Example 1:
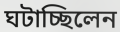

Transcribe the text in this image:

ঘটাচ্ছিলেন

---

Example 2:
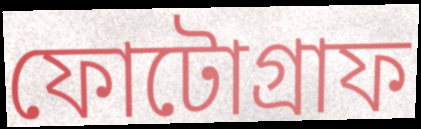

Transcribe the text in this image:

ফোটোগ্রাফ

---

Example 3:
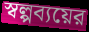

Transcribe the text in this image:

স্বল্পব্যয়ের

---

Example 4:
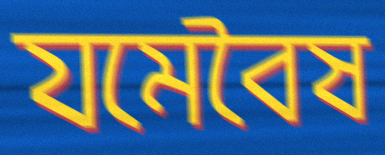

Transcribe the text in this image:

যমেবৈষ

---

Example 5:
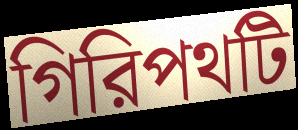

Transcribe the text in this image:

গিরিপথটি